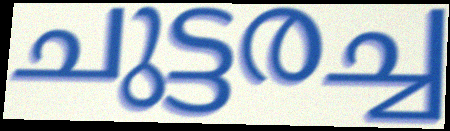
ചുട്ടരച്ച